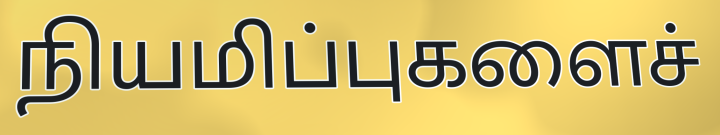
நியமிப்புகளைச்